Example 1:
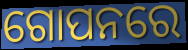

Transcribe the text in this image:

ଗୋପନରେ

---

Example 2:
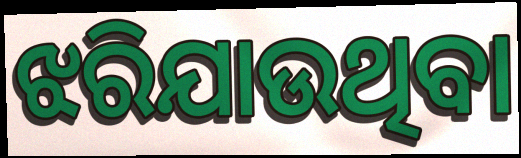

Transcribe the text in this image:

ଝରିଯାଉଥିବା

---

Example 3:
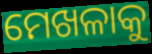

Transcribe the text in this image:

ମେଖଳାକୁ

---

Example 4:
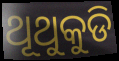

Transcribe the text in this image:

ଥୂଥୁକୁଡି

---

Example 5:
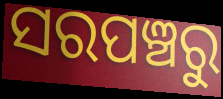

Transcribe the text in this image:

ସରପଞ୍ଚରୁ